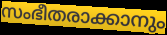
സംഭീതരാക്കാനും